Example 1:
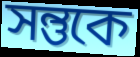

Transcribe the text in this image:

সন্তুকে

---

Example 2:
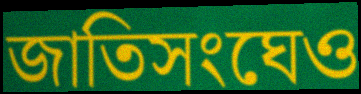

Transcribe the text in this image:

জাতিসংঘেও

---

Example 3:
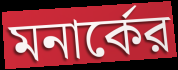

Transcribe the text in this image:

মনার্কের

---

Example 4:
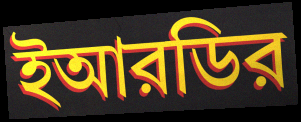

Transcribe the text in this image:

ইআরডির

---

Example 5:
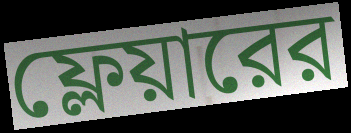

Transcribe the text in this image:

ফ্লেয়ারের